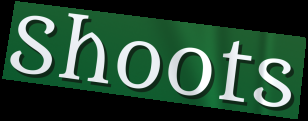
Shoots